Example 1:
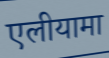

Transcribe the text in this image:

एलीयामा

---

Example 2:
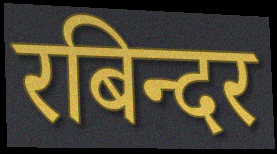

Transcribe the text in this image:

रबिन्दर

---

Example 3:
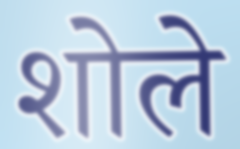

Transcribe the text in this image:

शोले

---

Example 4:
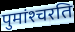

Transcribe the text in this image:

पुमांश्चरति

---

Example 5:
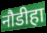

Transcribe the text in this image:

नौडीहा